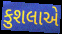
કુશલાએ